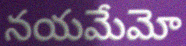
నయమేమో